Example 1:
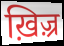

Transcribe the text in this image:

ख़िज़्र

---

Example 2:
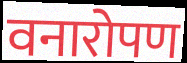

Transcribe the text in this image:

वनारोपण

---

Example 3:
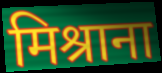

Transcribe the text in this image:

मिश्राना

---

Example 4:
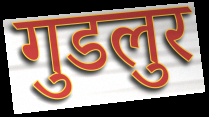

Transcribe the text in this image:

गुडलुर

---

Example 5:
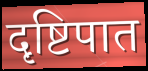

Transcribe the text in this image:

दृष्टिपात